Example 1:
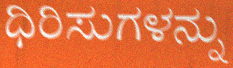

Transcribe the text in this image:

ಧಿರಿಸುಗಳನ್ನು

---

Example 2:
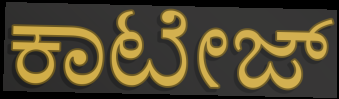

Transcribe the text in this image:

ಕಾಟೇಜ್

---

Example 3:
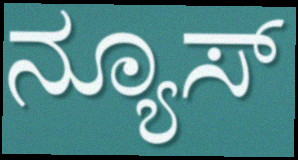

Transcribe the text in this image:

ನ್ಯೂಸ್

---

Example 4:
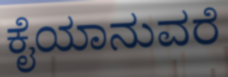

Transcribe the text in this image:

ಕೈಯಾನುವರೆ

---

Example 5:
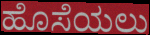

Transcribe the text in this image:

ಹೊಸೆಯಲು